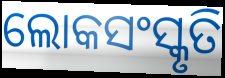
ଲୋକସଂସ୍କୃତି